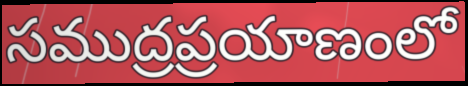
సముద్రప్రయాణంలో